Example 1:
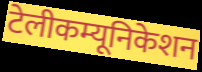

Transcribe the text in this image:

टेलीकम्‍यूनिकेशन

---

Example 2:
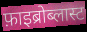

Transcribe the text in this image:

फ़ाइब्रोब्लास्ट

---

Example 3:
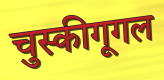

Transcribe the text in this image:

चुस्कीगूगल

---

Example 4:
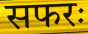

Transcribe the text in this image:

सफरः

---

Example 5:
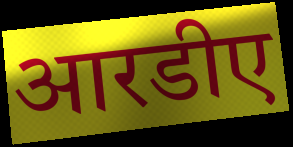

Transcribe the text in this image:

आरडीए